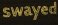
swayed